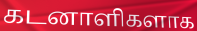
கடனாளிகளாக